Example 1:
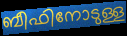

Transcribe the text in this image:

ബീഫിനോടുള്ള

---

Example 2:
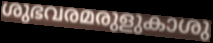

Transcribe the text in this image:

ശുഭവരമരുളുകാശു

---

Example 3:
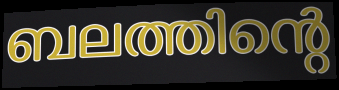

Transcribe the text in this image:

ബലത്തിന്റെ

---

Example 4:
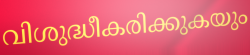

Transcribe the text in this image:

വിശുദ്ധീകരിക്കുകയും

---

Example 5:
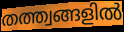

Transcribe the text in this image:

തത്ത്വങ്ങളിൽ